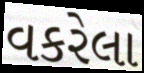
વકરેલા